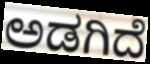
ಅಡಗಿದೆ